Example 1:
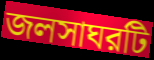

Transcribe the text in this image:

জলসাঘরটি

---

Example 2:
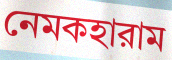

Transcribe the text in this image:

নেমকহারাম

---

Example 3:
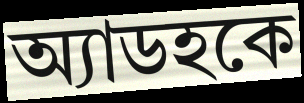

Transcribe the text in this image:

অ্যাডহকে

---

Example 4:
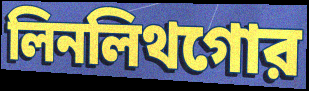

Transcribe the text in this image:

লিনলিথগোর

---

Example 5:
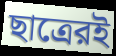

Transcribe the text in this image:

ছাত্রেরই